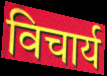
विचार्य